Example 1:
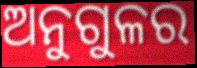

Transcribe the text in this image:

ଅନୁଗୁଳର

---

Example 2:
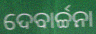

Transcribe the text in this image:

ଦେବାର୍ଚ୍ଚନା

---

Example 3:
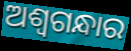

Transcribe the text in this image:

ଅଶ୍ୱଗନ୍ଧାର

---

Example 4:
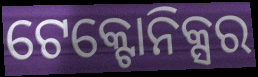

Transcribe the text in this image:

ଟେକ୍ଟୋନିକ୍ସର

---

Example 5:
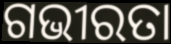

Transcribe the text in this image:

ଗଭୀରତା